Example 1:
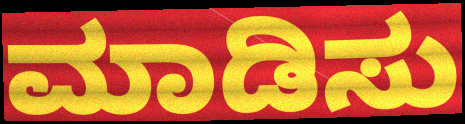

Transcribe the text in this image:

ಮಾಡಿಸು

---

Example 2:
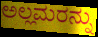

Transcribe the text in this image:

ಅಲ್ಲಮರನ್ನು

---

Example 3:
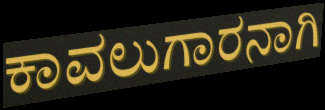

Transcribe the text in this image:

ಕಾವಲುಗಾರನಾಗಿ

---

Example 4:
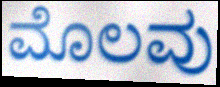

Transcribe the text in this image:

ಮೊಲವು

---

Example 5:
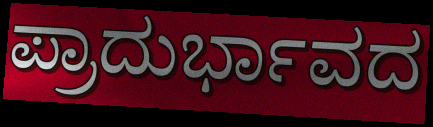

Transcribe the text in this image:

ಪ್ರಾದುರ್ಭಾವದ